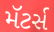
મૅટર્સ